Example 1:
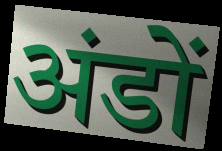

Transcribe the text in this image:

अंडों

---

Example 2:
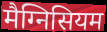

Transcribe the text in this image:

मैग्निसियम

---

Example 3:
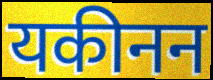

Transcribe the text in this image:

यकीनन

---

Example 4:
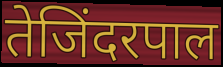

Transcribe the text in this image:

तेजिंदरपाल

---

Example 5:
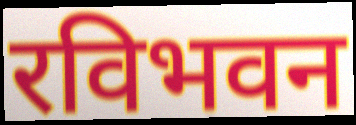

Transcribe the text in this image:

रविभवन